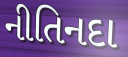
નીતિનદા